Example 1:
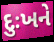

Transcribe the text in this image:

દુઃખને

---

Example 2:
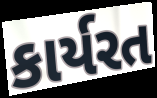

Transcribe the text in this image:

કાર્યરત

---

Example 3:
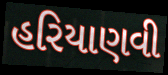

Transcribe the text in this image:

હરિયાણવી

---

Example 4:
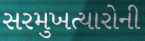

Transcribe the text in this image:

સરમુખત્યારોની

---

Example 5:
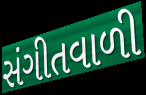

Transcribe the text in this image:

સંગીતવાળી